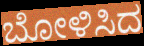
ಬೋಳಿಸಿದ